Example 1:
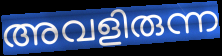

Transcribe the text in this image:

അവളിരുന്ന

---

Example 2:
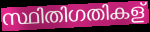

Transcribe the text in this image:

സ്ഥിതിഗതികള്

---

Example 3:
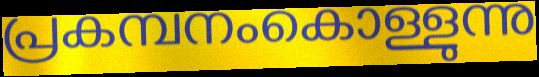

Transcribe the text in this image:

പ്രകമ്പനംകൊള്ളുന്നു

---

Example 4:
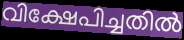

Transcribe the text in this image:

വിക്ഷേപിച്ചതിൽ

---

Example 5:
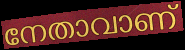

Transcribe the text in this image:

നേതാവാണ്